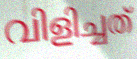
വിളിച്ചത്